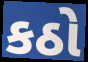
કઠો